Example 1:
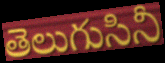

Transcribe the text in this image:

తెలుగుసినీ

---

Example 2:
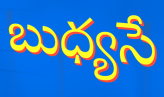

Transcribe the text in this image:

బుధ్యసే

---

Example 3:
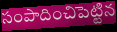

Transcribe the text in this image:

సంపాదించిపెట్టిన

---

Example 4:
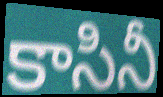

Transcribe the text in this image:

కాసినీ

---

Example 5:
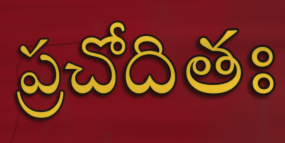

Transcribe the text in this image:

ప్రచోదితః